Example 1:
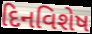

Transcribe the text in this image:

દિનવિશેષ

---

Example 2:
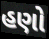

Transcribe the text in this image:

હણો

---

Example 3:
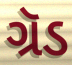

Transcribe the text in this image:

ગ્રૅડ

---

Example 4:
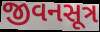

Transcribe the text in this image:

જીવનસૂત્ર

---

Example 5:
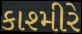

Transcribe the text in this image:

કાશ્મીરે